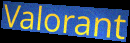
Valorant